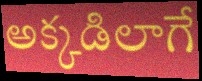
అక్కడిలాగే